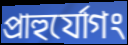
প্রাহুর্যোগং